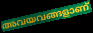
അവയവങ്ങളാണ്